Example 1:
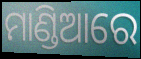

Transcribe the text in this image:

ମାଣ୍ଡିଆରେ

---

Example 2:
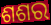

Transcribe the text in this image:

ଶଶର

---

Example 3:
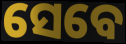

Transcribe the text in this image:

ସେବେ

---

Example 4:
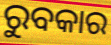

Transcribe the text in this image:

ରୁବକାର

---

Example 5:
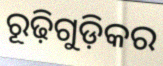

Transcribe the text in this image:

ରୂଢ଼ିଗୁଡ଼ିକର